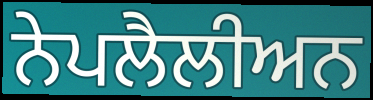
ਨੇਪਲੈਲੀਅਨ